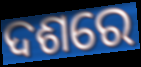
ଦଶରେ